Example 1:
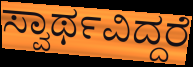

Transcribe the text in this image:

ಸ್ವಾರ್ಥವಿದ್ದರೆ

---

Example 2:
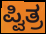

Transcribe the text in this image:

ಪ್ವಿತ್ರ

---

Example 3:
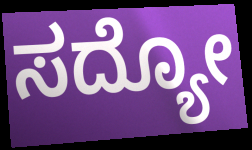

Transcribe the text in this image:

ಸದ್ಯೋ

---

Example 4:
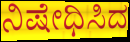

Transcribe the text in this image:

ನಿಷೇಧಿಸಿದ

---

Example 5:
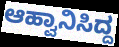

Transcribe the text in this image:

ಆಹ್ವಾನಿಸಿದ್ದ